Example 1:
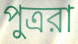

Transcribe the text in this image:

পুত্ররা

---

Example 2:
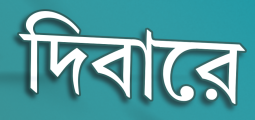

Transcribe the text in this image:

দিবারে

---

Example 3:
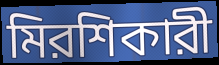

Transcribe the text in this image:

মিরশিকারী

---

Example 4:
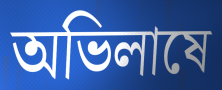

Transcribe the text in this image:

অভিলাষে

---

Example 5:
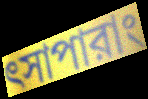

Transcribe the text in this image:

ৎসাপারাং